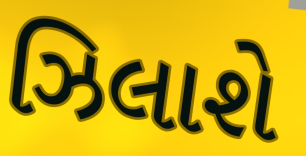
ઝિલાશે